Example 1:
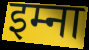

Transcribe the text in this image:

इम्ना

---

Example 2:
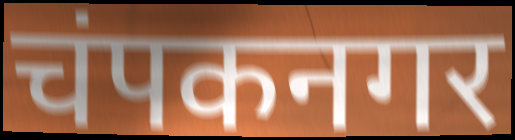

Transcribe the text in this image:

चंपकनगर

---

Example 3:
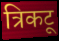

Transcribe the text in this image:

त्रिकटू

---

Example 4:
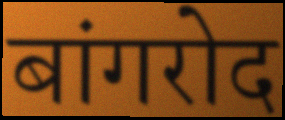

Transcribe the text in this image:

बांगरोद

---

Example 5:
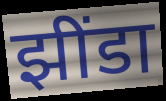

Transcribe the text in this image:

झींडा